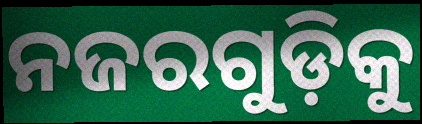
ନଜରଗୁଡ଼ିକୁ